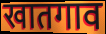
खातगाव